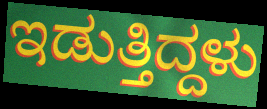
ಇಡುತ್ತಿದ್ದಳು